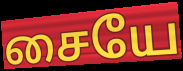
சையே